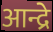
आन्द्रे